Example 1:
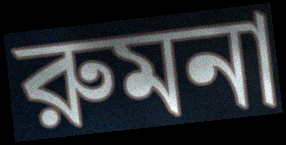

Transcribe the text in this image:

রুমনা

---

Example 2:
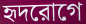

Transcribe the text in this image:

হৃদরোগে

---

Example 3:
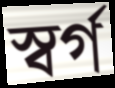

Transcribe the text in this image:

স্বর্গ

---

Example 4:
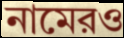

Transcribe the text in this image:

নামেরও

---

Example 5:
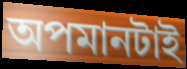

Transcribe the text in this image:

অপমানটাই